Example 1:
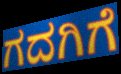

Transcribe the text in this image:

ಗದಗಿಗೆ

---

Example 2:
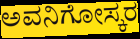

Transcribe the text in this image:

ಅವನಿಗೋಸ್ಕರ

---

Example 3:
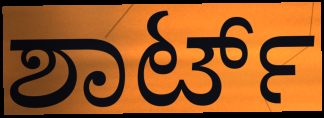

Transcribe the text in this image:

ಶಾರ್ಟ್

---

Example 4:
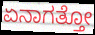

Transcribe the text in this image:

ಏನಾಗತ್ತೋ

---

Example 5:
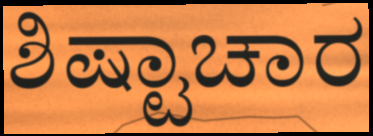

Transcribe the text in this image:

ಶಿಷ್ಟಾಚಾರ